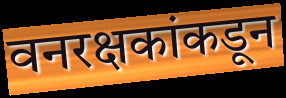
वनरक्षकांकडून